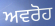
ਅਵਰੋਹ